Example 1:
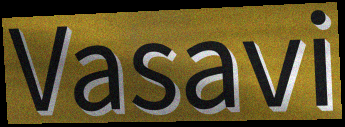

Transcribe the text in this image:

Vasavi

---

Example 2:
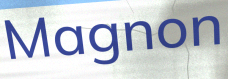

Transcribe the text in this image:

Magnon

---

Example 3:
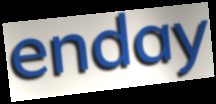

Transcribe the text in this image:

enday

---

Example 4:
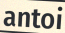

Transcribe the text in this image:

antoi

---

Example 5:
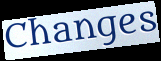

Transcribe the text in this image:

Changes